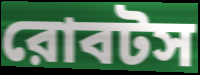
রোবটস